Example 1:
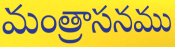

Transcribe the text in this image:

మంత్రాసనము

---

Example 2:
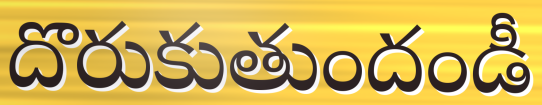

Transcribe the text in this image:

దొరుకుతుందండీ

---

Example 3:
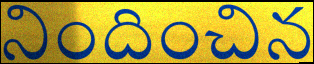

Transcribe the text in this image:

నిందించిన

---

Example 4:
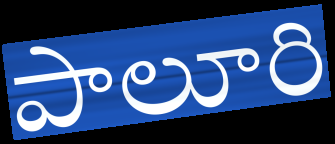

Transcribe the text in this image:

పాలూరి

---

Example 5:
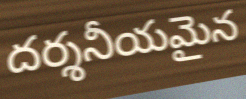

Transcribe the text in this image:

దర్శనీయమైన